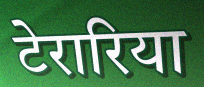
टेरारिया